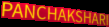
PANCHAKSHARI